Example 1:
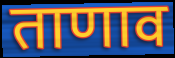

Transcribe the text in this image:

ताणाव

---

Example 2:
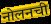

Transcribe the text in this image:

नोलनची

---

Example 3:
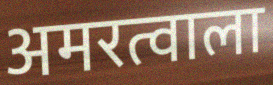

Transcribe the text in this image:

अमरत्वाला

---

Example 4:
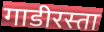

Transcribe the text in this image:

गाडीरस्ता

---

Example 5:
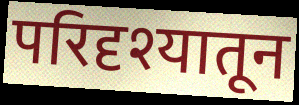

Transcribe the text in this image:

परिदृश्यातून